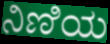
ನಿಣಿಯ